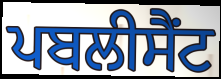
ਪਬਲੀਸੈਂਟ